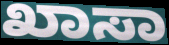
ಖಾಸಾ